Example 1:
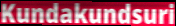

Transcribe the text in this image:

Kundakundsuri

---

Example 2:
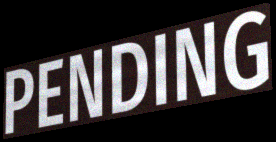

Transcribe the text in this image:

PENDING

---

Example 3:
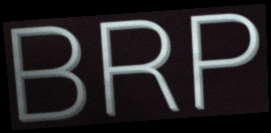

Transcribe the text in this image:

BRP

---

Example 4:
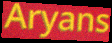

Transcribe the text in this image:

Aryans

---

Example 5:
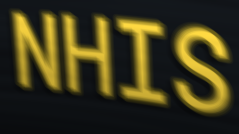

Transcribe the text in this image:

NHIS